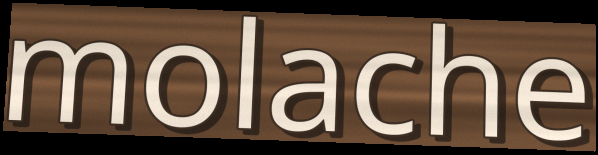
molache